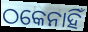
ଠକେନାହିଁ